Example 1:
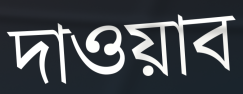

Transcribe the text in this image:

দাওয়াব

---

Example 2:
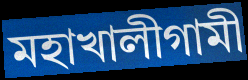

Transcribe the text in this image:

মহাখালীগামী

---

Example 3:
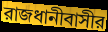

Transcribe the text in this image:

রাজধানীবাসীর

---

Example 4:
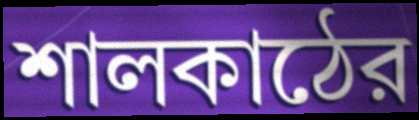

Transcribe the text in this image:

শালকাঠের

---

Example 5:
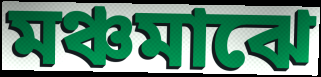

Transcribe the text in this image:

মঞ্চমাঝে